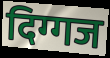
दिग्गज